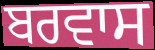
ਬਰਵਾਸ